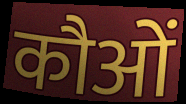
कौओं